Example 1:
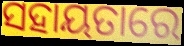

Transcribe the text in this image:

ସହାୟତାରେ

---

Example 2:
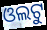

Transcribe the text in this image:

ଓଲଟୁ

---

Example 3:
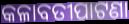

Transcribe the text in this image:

କଳାବତୀପାଟଣା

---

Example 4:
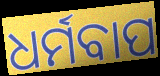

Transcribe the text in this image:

ଧର୍ମବାପ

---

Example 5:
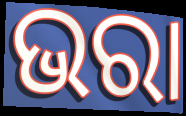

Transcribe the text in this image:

ଭରା